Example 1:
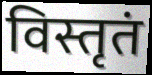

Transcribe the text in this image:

विस्तृतं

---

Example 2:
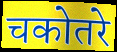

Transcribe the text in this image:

चकोतरे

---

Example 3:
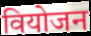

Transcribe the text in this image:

वियोजन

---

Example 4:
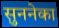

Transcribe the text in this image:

सुननेका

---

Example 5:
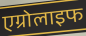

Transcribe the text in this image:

एग्रोलाइफ